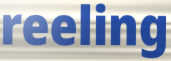
reeling